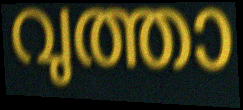
വുത്താ